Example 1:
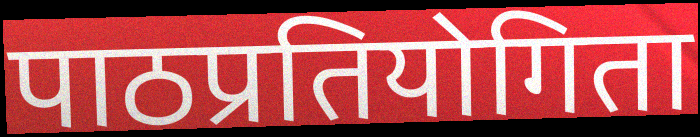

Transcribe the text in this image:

पाठप्रतियोगिता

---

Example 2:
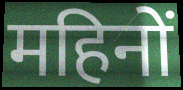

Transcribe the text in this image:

महिनों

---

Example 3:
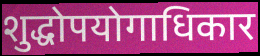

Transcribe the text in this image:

शुद्धोपयोगाधिकार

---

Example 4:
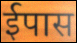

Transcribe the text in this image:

ईपास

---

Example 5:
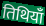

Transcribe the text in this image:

तिथियाँ